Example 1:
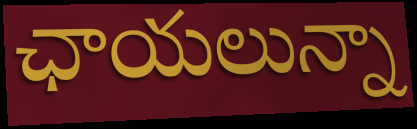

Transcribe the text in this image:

ఛాయలున్నా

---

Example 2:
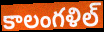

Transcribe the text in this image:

కాలంగళిల్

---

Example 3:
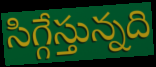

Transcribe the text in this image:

సిగ్గేస్తున్నది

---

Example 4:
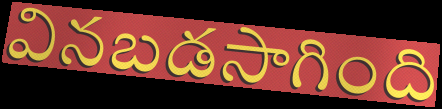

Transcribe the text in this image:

వినబడసాగింది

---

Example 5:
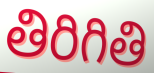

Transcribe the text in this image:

తిరిగితి